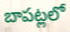
బాపట్లలో